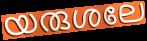
യരുശലേ